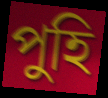
পুহি